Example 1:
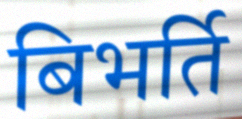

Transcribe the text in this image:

बिभर्ति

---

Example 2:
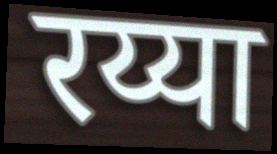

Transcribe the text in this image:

रय्या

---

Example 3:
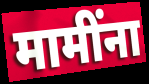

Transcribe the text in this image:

मामींना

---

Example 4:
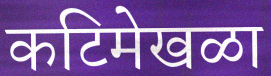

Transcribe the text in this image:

कटिमेखळा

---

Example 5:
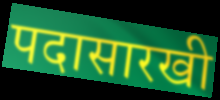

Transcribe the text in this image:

पदासारखी